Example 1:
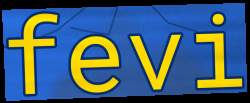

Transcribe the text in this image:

fevi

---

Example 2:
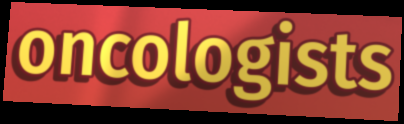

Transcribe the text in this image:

oncologists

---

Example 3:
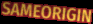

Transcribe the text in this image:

SAMEORIGIN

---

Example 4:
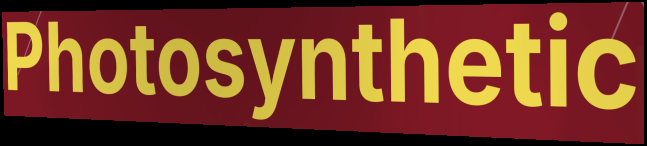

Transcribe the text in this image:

Photosynthetic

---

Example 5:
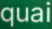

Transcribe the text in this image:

quai